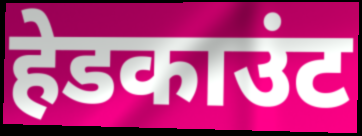
हेडकाउंट